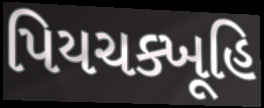
પિયચક્ખૂહિ